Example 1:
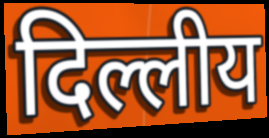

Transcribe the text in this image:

दिल्लीय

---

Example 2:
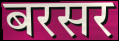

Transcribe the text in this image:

बरसर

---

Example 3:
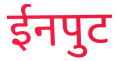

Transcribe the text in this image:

ईनपुट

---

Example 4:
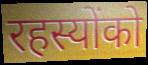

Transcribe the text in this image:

रहस्योंको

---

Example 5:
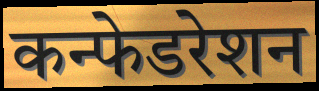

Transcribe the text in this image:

कन्‍फेडरेशन